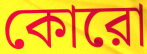
কোরো